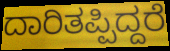
ದಾರಿತಪ್ಪಿದ್ದರೆ